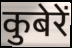
कुबेरें